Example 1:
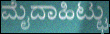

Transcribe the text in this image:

ಮೈದಾಹಿಟ್ಟು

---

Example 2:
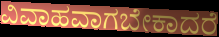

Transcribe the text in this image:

ವಿವಾಹವಾಗಬೇಕಾದರೆ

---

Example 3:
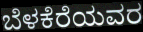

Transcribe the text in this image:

ಬೆಳಕೆರೆಯವರ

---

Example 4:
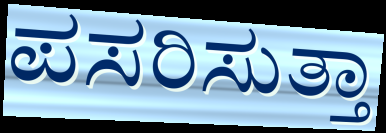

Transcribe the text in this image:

ಪಸರಿಸುತ್ತಾ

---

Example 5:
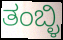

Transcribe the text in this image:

ತಂಬ್ಳಿ